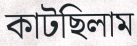
কাটছিলাম